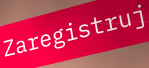
Zaregistruj